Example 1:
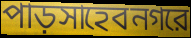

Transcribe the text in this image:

পাড়সাহেবনগরে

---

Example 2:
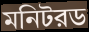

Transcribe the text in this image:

মনিটরড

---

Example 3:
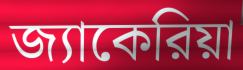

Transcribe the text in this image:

জ্যাকেরিয়া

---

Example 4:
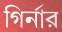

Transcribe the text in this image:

গির্নার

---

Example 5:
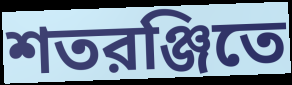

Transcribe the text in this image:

শতরঞ্জিতে